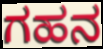
ಗಹನ